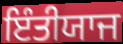
ਇੰਤੀਯਾਜ